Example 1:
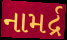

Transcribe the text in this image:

નામર્દ્ર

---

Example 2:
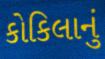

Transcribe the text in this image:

કોકિલાનું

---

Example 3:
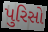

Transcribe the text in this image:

પુરિસો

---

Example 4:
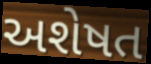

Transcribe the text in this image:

અશેષત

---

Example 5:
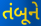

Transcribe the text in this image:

તંબૂને